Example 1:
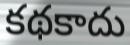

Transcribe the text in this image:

కథకాదు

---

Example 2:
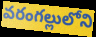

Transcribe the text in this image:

వరంగల్లులోని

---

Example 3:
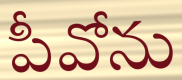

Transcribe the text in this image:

పీవోను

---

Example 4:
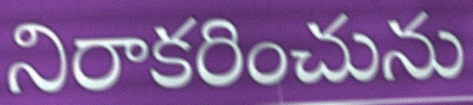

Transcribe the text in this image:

నిరాకరించును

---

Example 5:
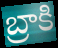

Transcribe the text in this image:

బ్రాకి